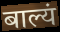
बाल्यं